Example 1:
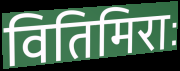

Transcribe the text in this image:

वितिमिराः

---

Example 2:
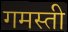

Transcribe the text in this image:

गमस्ती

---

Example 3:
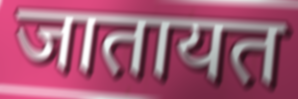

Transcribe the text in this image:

जातायत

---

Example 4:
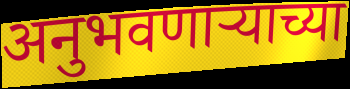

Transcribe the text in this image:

अनुभवणार्‍याच्या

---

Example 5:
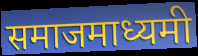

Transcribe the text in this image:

समाजमाध्यमी